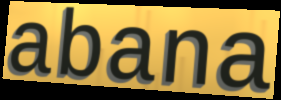
abana